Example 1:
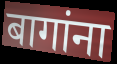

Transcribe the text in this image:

बागांना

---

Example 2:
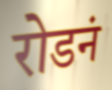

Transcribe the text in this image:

रोडनं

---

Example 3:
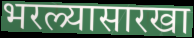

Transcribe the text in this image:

भरल्यासारखा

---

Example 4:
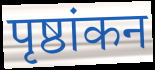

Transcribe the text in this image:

पृष्ठांकन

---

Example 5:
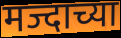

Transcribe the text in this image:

मज्दाच्या